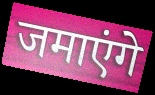
जमाएंगे